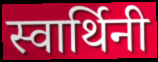
स्वार्थिनी